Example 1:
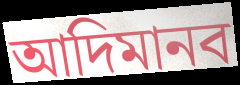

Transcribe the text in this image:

আদিমানব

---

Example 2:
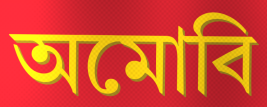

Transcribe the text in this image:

অমোবি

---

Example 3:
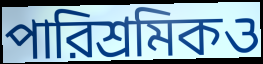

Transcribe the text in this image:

পারিশ্রমিকও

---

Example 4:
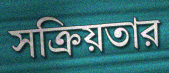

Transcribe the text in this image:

সক্রিয়তার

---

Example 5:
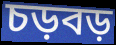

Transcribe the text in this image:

চড়বড়